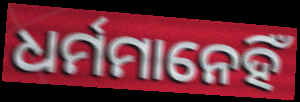
ଧର୍ମମାନେହିଁ